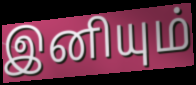
இனியும்